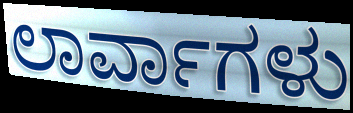
ಲಾರ್ವಾಗಳು